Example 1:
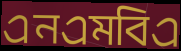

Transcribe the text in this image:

এনএমবিএ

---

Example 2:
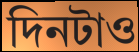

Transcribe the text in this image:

দিনটাও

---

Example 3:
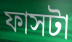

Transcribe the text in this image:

ফাসটা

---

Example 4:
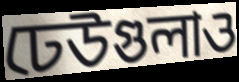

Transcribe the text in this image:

ঢেউগুলাও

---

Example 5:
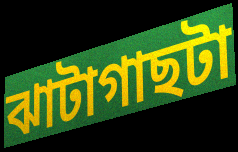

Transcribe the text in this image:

ঝাটাগাছটা